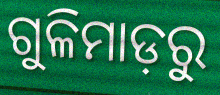
ଗୁଳିମାଡ଼ରୁ